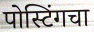
पोस्टिंगचा